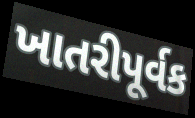
ખાતરીપૂર્વક